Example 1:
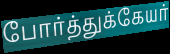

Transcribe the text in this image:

போர்த்துக்கேயர்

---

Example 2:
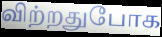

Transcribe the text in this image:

விற்றதுபோக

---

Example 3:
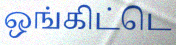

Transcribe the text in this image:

ஒங்கிட்டெ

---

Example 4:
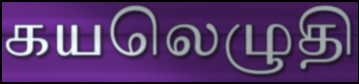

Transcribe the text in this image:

கயலெழுதி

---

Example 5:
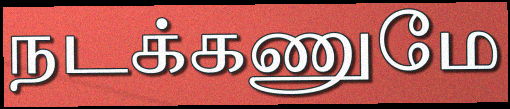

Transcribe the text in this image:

நடக்கணுமே